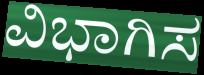
ವಿಭಾಗಿಸ